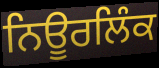
ਨਿਊਰਲਿੰਕ